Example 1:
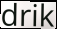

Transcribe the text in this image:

drik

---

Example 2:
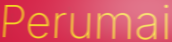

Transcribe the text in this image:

Perumai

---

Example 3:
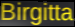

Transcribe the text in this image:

Birgitta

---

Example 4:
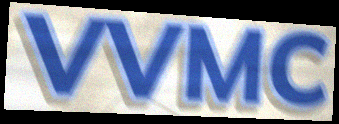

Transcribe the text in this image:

VVMC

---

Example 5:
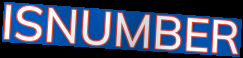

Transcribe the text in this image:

ISNUMBER